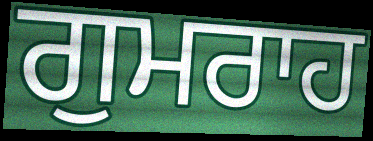
ਗੁਮਰਾਹ